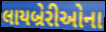
લાયબ્રેરીઓના